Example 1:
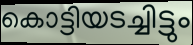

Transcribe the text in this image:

കൊട്ടിയടച്ചിട്ടും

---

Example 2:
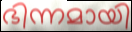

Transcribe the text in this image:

ഭിന്നമായി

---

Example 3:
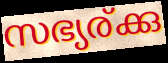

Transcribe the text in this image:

സഭ്യര്ക്കു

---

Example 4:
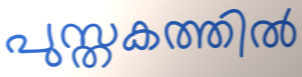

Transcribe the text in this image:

പുസ്തകത്തിൽ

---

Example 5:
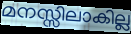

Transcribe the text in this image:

മനസ്സിലാകില്ല